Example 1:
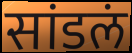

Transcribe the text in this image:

सांडलं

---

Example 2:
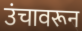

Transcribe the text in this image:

उंचावरून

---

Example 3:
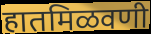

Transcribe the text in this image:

हातमिळवणी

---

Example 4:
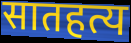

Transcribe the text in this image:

सातहत्य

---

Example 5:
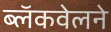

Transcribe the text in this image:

ब्लॅकवेलने